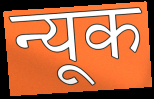
न्यूक